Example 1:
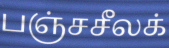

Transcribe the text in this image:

பஞ்சசீலக்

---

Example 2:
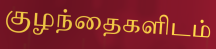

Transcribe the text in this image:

குழந்தைகளிடம்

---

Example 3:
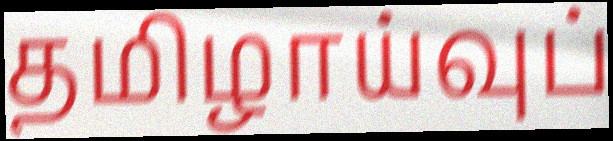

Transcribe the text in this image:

தமிழாய்வுப்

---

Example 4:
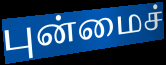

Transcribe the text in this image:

புன்மைச்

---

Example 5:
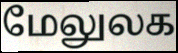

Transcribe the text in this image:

மேலுலக